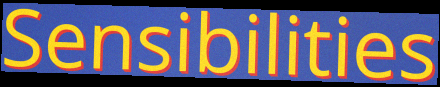
Sensibilities